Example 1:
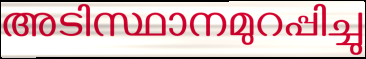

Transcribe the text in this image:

അടിസ്ഥാനമുറപ്പിച്ചു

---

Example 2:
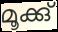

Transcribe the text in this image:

മൂക്കു്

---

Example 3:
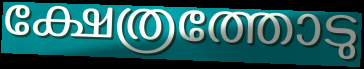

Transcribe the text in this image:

ക്ഷേത്രത്തോടു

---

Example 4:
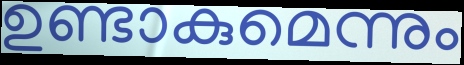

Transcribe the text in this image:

ഉണ്ടാകുമെന്നും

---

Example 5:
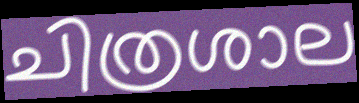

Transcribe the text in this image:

ചിത്രശാല